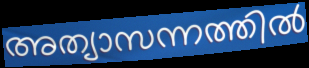
അത്യാസന്നത്തിൽ